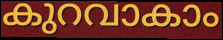
കുറവാകാം